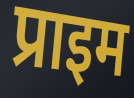
प्राइम